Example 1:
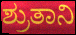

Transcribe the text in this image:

ಶ್ರುತಾನಿ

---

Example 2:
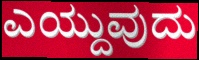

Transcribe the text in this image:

ಎಯ್ದುವುದು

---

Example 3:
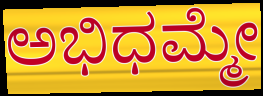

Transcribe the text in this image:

ಅಭಿಧಮ್ಮೇ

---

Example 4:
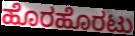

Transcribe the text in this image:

ಹೊರಹೊರಟು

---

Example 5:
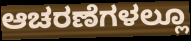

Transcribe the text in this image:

ಆಚರಣೆಗಳಲ್ಲೂ